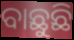
ବାଛୁଛି